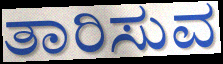
ತಾರಿಸುವ